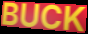
BUCK